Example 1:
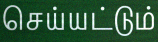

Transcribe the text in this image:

செய்யட்டும்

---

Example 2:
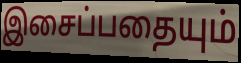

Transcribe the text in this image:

இசைப்பதையும்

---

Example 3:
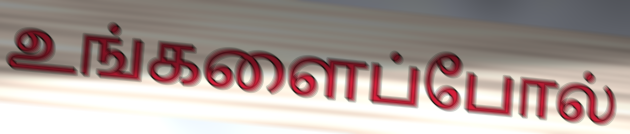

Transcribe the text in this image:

உங்களைப்போல்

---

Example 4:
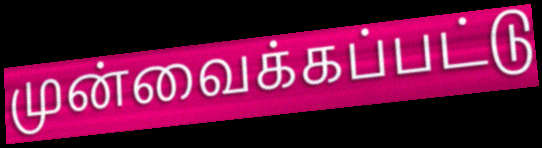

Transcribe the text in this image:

முன்வைக்கப்பட்டு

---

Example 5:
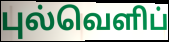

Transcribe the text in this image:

புல்வெளிப்